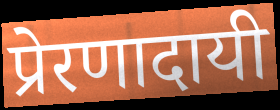
प्रेरणादायी